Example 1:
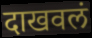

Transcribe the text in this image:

दाखवलं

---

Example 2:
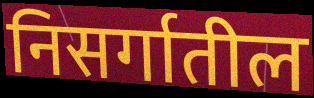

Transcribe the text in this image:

निसर्गातील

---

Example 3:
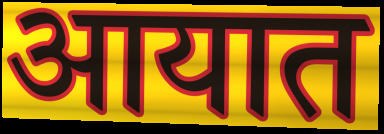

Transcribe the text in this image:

आयात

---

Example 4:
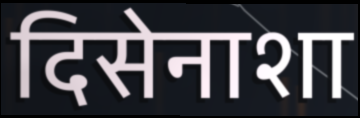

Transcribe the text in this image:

दिसेनाशा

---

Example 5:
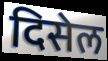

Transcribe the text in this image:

दिसेल